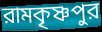
রামকৃষ্ণপুর